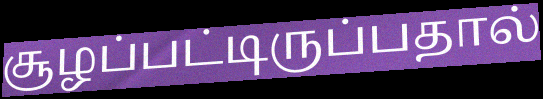
சூழப்பட்டிருப்பதால்